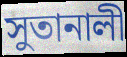
সুতানালী